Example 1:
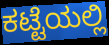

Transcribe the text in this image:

ಕಟ್ಟೆಯಲ್ಲಿ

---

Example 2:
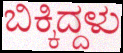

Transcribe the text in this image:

ಬಿಕ್ಕಿದ್ದಳು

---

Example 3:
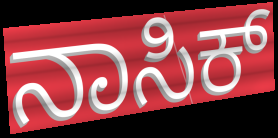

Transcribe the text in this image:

ನಾಸಿಕ್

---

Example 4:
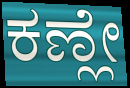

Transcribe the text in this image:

ಕಣ್ಲೇ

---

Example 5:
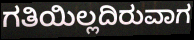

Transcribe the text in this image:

ಗತಿಯಿಲ್ಲದಿರುವಾಗ